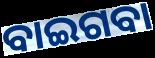
ବାଇଗବା